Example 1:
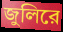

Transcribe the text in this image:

জুলিরে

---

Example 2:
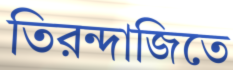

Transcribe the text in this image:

তিরন্দাজিতে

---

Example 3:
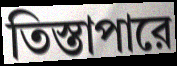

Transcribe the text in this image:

তিস্তাপারে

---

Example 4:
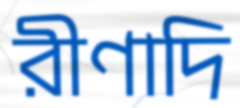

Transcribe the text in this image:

রীণাদি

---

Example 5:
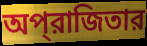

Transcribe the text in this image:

অপ্‌রাজিতার